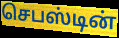
செபஸ்டின்